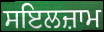
ਸਇਲਜ਼ਾਮ